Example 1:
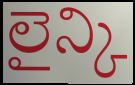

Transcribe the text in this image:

లైన్కి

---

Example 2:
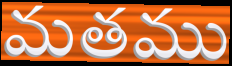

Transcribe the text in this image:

మతము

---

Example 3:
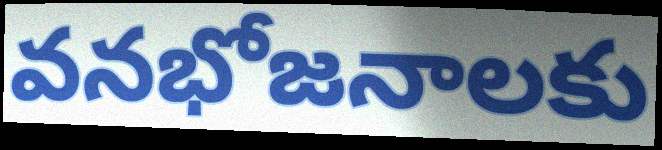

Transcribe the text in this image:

వనభోజనాలకు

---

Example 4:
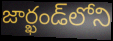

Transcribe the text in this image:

జార్ఖండ్‌లోని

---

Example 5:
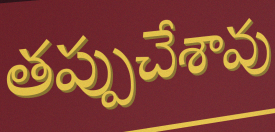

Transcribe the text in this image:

తప్పుచేశావు